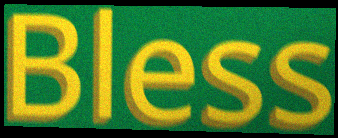
Bless